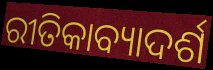
ରୀତିକାବ୍ୟାଦର୍ଶ